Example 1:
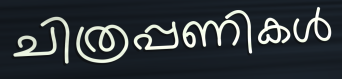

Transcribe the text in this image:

ചിത്രപ്പണികൾ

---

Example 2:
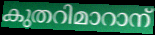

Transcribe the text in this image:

കുതറിമാറാന്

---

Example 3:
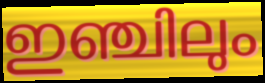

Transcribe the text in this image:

ഇഞ്ചിലും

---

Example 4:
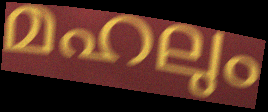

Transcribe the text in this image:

മഹലും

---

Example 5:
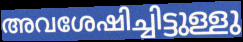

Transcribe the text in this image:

അവശേഷിച്ചിട്ടുള്ളു